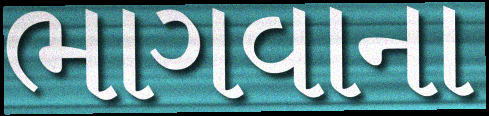
ભાગવાના